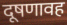
दूषणावह